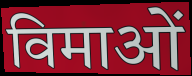
विमाओं